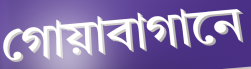
গোয়াবাগানে